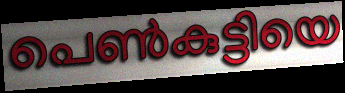
പെൺകുട്ടിയെ